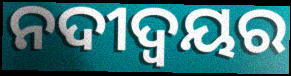
ନଦୀଦ୍ବୟର